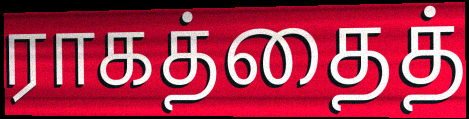
ராகத்தைத்